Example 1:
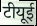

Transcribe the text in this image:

टीयूई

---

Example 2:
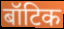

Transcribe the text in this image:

बॉटिक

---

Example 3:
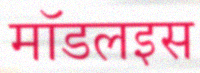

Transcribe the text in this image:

मॉडलइस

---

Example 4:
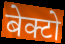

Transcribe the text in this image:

बेक्टो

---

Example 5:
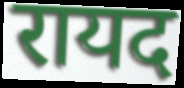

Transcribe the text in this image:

रायद